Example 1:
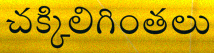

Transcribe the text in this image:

చక్కిలిగింతలు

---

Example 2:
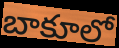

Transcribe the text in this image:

బాకూలో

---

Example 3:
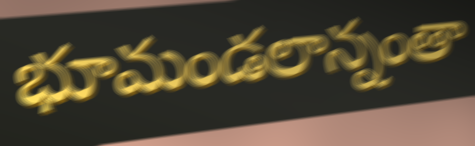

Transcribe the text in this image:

భూమండలాన్నంతా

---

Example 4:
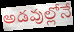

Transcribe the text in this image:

అడవుల్లోనే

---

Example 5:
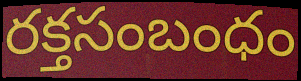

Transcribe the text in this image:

రక్తసంబంధం